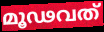
മൂഢവത്